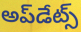
అప్‌డేట్స్